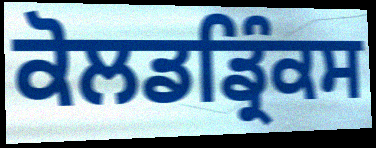
ਕੋਲਡਡ੍ਰਿੰਕਸ